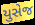
યુસેજ